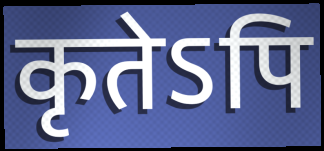
कृतेऽपि